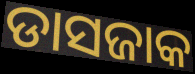
ଡାସଜାକ